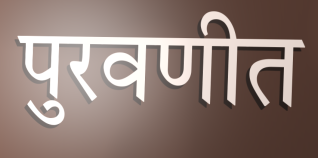
पुरवणीत